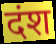
दंश